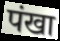
पंखा